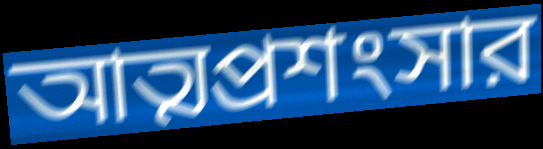
আত্মপ্রশংসার